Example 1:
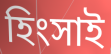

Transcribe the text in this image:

হিংসাই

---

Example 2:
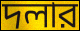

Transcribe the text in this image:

দলার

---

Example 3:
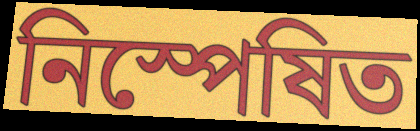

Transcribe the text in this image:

নিস্পেষিত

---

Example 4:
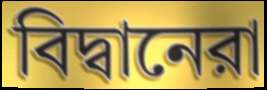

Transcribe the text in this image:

বিদ্বানেরা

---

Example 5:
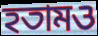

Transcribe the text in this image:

হতামও